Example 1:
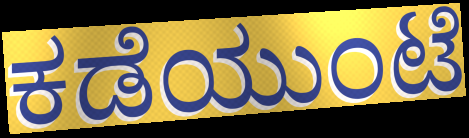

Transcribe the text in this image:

ಕಡೆಯುಂಟೆ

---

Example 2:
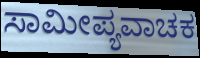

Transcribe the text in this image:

ಸಾಮೀಪ್ಯವಾಚಕ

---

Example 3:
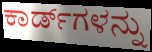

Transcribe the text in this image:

ಕಾರ್ಡ್‌ಗಳನ್ನು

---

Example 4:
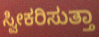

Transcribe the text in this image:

ಸ್ವೀಕರಿಸುತ್ತಾ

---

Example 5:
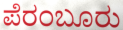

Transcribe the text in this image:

ಪೆರಂಬೂರು